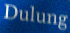
Dulung